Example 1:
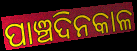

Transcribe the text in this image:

ପାଞ୍ଚଦିନକାଳ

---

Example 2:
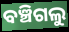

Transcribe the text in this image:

ବଞ୍ଚିଗଲୁ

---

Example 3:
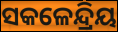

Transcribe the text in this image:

ସକଳେନ୍ଦ୍ରିୟ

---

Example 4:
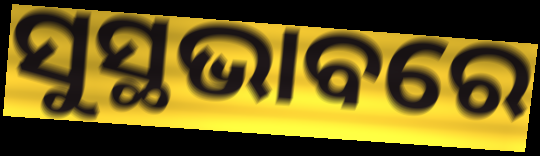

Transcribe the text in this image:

ସୁସ୍ଥଭାବରେ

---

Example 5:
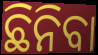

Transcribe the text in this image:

ଛିନିବା